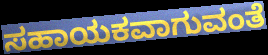
ಸಹಾಯಕವಾಗುವಂತೆ